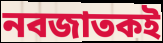
নবজাতকই